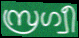
സ്രഗ്വീ